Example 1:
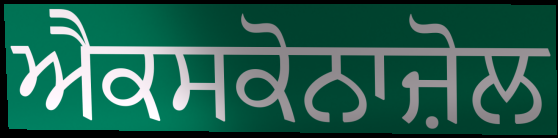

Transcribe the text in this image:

ਐਕਸਕੋਨਾਜ਼ੋਲ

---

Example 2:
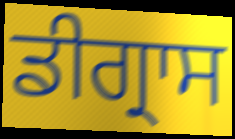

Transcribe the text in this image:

ਡੀਗ੍ਰਾਸ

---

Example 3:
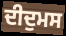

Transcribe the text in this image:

ਦੀਦੁਮਸ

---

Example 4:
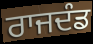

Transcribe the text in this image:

ਰਾਜਦੰਡ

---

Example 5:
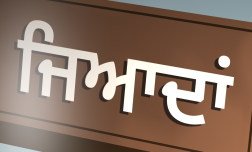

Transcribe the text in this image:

ਜਿਆਦਾਂ